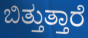
ಬಿತ್ತುತ್ತಾರೆ